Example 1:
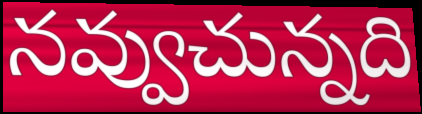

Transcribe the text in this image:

నవ్వుచున్నది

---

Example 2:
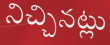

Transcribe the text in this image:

నిచ్చినట్లు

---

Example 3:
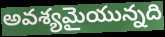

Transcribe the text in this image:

అవశ్యమైయున్నది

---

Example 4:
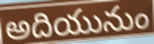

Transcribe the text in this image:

అదియునుం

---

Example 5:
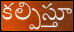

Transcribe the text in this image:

కల్పిస్తూ